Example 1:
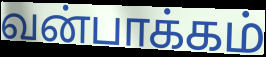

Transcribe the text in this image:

வன்பாக்கம்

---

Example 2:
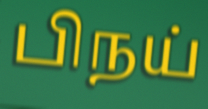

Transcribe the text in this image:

பிநய்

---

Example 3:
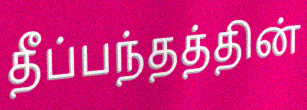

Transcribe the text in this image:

தீப்பந்தத்தின்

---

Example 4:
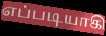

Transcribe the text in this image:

எப்படியாகி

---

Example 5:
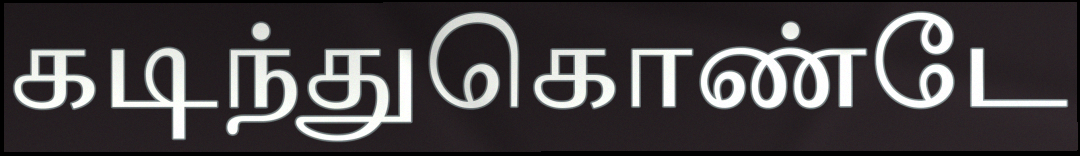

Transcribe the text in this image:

கடிந்துகொண்டே